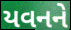
યવનને